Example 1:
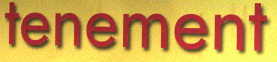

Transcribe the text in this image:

tenement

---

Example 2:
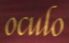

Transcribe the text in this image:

oculo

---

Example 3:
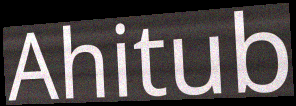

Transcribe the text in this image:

Ahitub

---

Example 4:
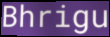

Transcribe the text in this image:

Bhrigu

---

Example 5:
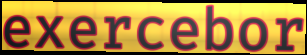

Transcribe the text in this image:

exercebor